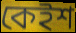
কেইশ